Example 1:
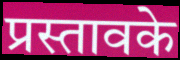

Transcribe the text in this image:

प्रस्तावके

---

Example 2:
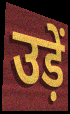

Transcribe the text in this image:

उड़ें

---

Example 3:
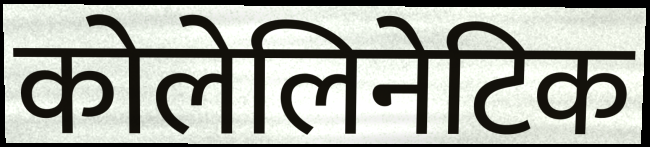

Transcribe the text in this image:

कोलेलिनेटिक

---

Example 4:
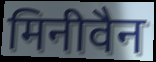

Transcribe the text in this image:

मिनीवैन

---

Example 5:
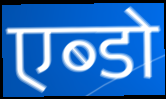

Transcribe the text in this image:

एब्डो